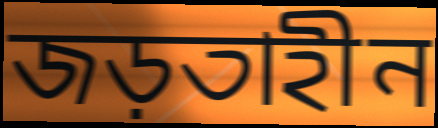
জড়তাহীন